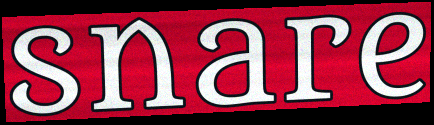
snare